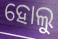
ହୋଲୁ